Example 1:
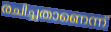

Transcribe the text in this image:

രചിച്ചതാണെന്ന്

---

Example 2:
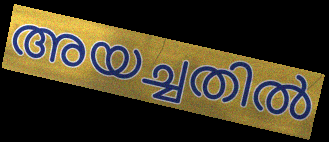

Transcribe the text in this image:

അയച്ചതിൽ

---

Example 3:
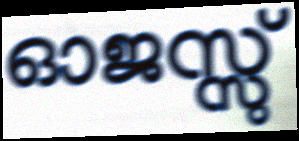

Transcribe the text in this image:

ഓജസ്സു്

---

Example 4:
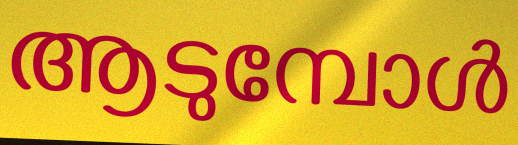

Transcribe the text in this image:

ആടുമ്പോൾ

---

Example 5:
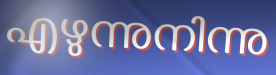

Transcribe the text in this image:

എഴുന്നുനിന്നു